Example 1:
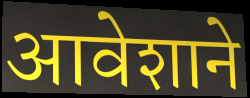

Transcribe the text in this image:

आवेशाने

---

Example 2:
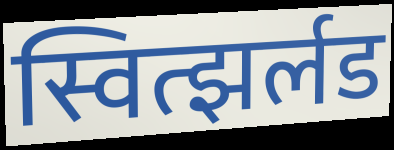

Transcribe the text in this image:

स्वित्झर्लड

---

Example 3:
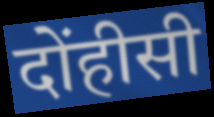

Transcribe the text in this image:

दोंहीसी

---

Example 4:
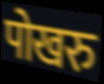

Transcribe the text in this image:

पोखरु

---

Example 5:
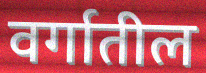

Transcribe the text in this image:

वर्गातील